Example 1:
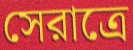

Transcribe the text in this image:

সেরাত্রে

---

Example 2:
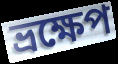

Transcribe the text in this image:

ভ্রক্ষেপ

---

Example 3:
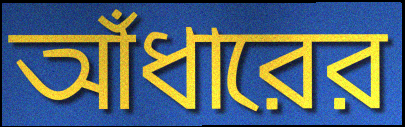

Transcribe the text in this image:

আঁধারের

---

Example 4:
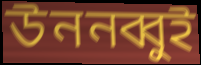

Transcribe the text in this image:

উননব্বুই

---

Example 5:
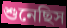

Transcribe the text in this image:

শুনেছিস